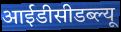
आईडीसीडब्ल्यू